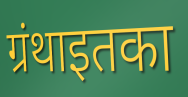
ग्रंथाइतका